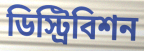
ডিস্ট্রিবিশন